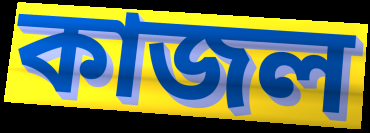
কাজল